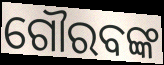
ଗୌରବଙ୍କ